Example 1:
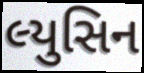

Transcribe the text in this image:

લ્યુસિન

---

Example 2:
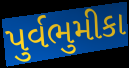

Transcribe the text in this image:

પુર્વભુમીકા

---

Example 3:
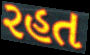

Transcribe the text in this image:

રહત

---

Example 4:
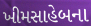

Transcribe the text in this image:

ખીમસાહેબના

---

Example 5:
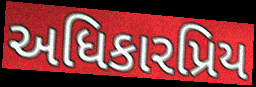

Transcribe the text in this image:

અધિકારપ્રિય